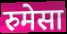
रुमेसा